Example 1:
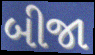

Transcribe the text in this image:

બીજા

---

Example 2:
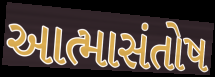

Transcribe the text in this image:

આત્માસંતોષ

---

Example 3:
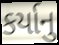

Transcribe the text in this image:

કર્યાનુ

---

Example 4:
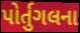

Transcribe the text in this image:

પોર્તુગલના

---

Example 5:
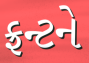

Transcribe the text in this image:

ફ્રન્ટને